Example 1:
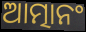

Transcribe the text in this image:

ଆତ୍ମାନଂ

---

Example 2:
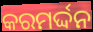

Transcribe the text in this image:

କରମର୍ଦ୍ଦନ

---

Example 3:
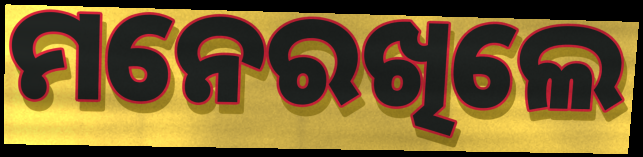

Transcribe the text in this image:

ମନେରଖିଲେ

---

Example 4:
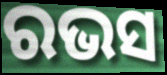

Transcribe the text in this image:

ରଭସ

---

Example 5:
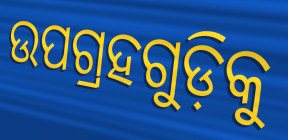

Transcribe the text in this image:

ଉପଗ୍ରହଗୁଡ଼ିକୁ